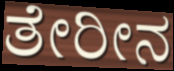
ತೇರೀನ